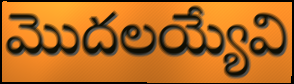
మొదలయ్యేవి